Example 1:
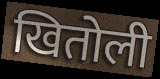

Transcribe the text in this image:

खितोली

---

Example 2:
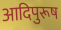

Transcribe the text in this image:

आदिपुरूष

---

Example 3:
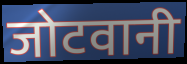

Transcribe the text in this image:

जोटवानी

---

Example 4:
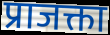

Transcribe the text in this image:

प्राजक्ता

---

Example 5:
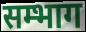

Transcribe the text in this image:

सम्भाग